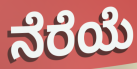
ನೆರೆಯೆ